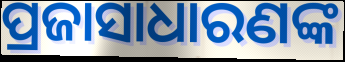
ପ୍ରଜାସାଧାରଣଙ୍କ